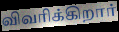
விவரிக்கிறார்